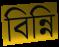
বিন্নি